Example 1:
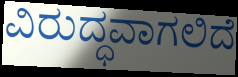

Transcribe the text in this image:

ವಿರುದ್ಧವಾಗಲಿದೆ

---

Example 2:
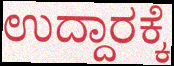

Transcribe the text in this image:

ಉದ್ದಾರಕ್ಕೆ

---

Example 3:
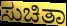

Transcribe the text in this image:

ಸುಚಿತಾ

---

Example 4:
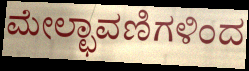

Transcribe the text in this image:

ಮೇಲ್ಛಾವಣಿಗಳಿಂದ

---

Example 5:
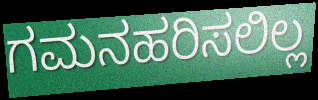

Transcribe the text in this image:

ಗಮನಹರಿಸಲಿಲ್ಲ